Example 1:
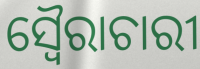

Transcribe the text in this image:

ସ୍ୱୈରାଚାରୀ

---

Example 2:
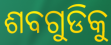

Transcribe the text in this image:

ଶବଗୁଡିକୁ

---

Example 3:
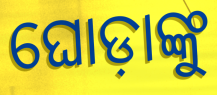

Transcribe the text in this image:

ଘୋଡ଼ାଙ୍କୁ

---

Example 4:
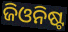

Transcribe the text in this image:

ଜିଓନିଷ୍ଟ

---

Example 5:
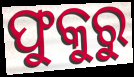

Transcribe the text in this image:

ଫୁକୁରୁ